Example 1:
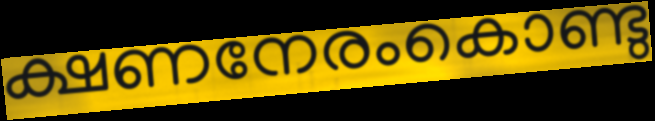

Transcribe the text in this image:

ക്ഷണനേരംകൊണ്ടു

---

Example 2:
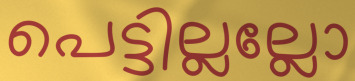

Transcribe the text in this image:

പെട്ടില്ലല്ലോ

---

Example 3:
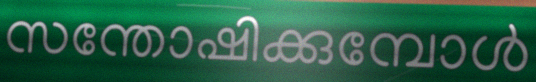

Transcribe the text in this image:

സന്തോഷിക്കുമ്പോൾ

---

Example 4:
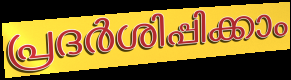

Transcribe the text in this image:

പ്രദർശിപ്പിക്കാം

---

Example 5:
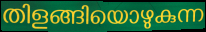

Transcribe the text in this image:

തിളങ്ങിയൊഴുകുന്ന